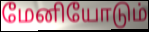
மேனியோடும்